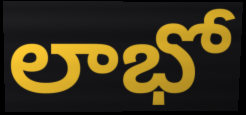
లాభో